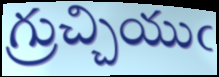
గ్రుచ్చియుఁ